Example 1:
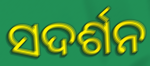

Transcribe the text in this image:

ସଦର୍ଶନ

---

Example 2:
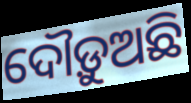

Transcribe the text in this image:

ଦୌଡ଼ୁଅଛି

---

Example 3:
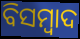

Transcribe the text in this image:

ବିସମ୍ୱାଦ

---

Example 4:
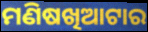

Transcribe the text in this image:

ମଣିଷଖିଆଟାର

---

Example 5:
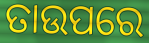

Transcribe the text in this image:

ତାଉପରେ